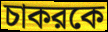
চাকরকে